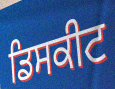
ਡਿਸਕੀਟ